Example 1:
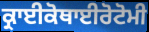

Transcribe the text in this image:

ਕ੍ਰਾਈਕੋਥਾਈਰੋਟੋਮੀ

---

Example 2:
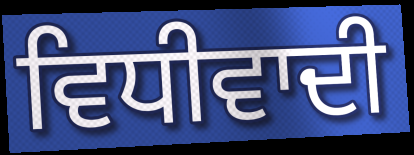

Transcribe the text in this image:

ਵਿਧੀਵਾਦੀ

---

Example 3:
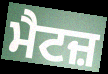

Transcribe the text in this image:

ਮੈਟਜ਼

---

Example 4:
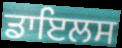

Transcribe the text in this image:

ਡਾਇਲਸ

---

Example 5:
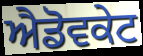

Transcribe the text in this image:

ਐਡੋਵਕੇਟ